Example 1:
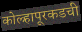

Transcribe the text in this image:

कोल्हापूरकडची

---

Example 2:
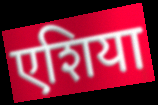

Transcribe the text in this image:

एशिया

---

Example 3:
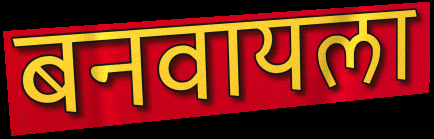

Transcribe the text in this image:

बनवायला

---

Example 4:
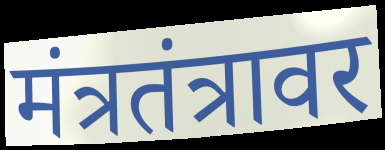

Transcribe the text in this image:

मंत्रतंत्रावर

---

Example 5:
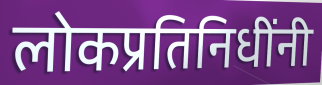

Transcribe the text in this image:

लोकप्रतिनिधींनी